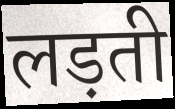
लड़ती